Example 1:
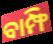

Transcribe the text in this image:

ବାମ୍ଫି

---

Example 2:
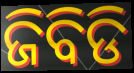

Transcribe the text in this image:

ଜିବିଡି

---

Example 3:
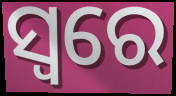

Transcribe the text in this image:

ସ୍ବରେ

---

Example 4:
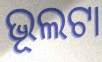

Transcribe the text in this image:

ଭୂଲଟା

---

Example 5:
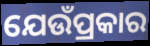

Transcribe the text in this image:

ଯେଉଁପ୍ରକାର